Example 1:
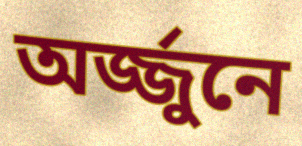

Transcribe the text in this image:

অর্জ্জুনে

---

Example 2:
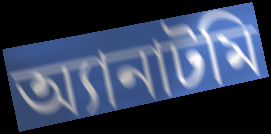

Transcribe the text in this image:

অ্যানাটমি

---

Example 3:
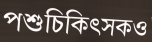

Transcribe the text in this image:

পশুচিকিৎসকও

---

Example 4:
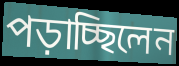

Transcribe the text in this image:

পড়াচ্ছিলেন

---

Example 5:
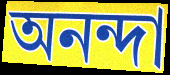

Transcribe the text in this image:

অনন্দা